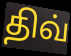
திவ்